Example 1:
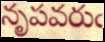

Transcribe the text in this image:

నృపవరుఁ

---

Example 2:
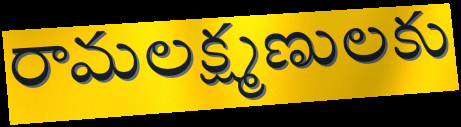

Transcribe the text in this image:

రామలక్ష్మణులకు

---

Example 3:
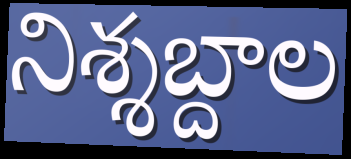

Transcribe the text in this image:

నిశ్శబ్దాల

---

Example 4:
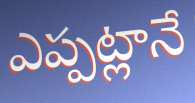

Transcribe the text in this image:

ఎప్పట్లానే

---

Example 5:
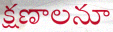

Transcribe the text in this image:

క్షణాలనూ